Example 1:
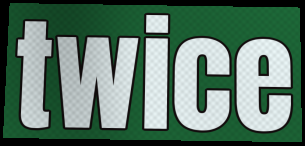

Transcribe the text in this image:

twice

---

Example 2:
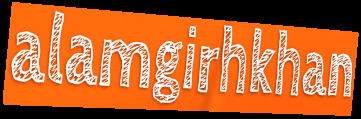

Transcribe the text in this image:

alamgirhkhan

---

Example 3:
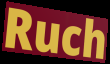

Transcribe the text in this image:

Ruch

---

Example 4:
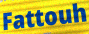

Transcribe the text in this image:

Fattouh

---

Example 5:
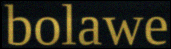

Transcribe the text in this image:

bolawe